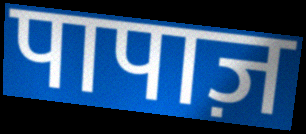
पापाज़